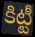
కిట్టీ